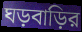
ঘড়বাড়ির